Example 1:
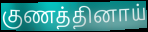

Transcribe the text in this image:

குணத்தினாய்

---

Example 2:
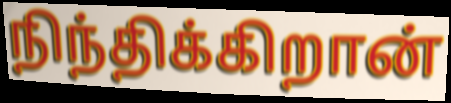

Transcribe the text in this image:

நிந்திக்கிறான்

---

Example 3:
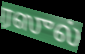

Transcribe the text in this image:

ரஸுல்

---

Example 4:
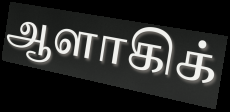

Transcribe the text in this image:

ஆளாகிக்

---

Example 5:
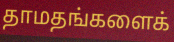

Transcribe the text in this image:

தாமதங்களைக்